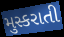
મુસ્કરાતી